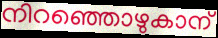
നിറഞ്ഞൊഴുകാന്